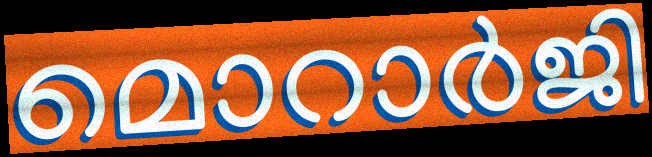
മൊറാർജി